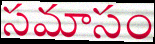
సమాసం